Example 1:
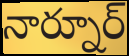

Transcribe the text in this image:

నార్నూర్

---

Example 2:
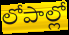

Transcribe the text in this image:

లోపాల్లో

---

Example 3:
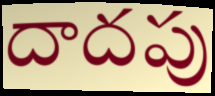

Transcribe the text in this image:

దాదపు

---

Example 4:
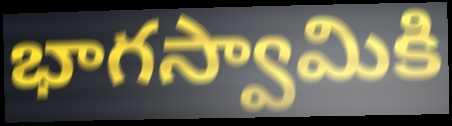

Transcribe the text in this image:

భాగస్వామికి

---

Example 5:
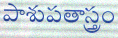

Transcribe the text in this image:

పాశుపతాస్త్రం